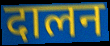
दालन